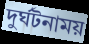
দুর্ঘটনাময়